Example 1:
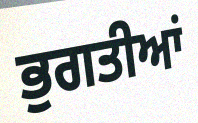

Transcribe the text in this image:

ਭੁਗਤੀਆਂ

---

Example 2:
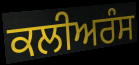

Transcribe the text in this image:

ਕਲੀਅਰੰਸ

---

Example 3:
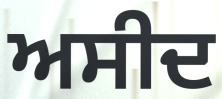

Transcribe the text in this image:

ਅਸੀਦ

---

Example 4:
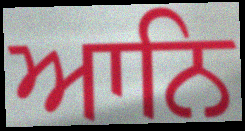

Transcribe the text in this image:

ਆਨਿ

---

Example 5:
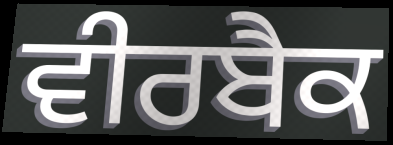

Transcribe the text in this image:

ਵੀਰਬੈਕ